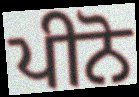
ਪੀਨੋ